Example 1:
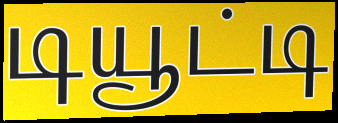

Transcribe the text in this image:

டியூட்டி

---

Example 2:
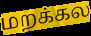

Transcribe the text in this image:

மறக்கல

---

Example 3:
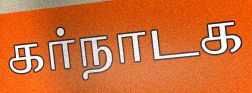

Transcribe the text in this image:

கர்நாடக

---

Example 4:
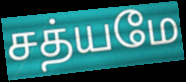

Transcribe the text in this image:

சத்யமே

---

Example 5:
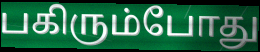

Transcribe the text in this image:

பகிரும்போது